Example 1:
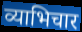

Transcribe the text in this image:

व्याभिचार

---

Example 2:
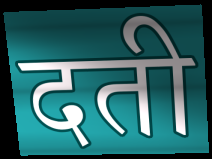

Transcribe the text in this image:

दती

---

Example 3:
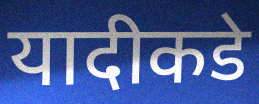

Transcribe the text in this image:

यादीकडे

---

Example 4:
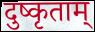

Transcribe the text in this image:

दुष्कृताम्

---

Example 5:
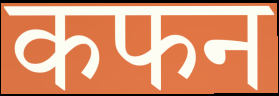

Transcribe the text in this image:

कफन